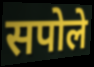
सपोले